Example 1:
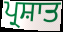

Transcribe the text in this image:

ਪ੍ਰਸ਼ਾਤ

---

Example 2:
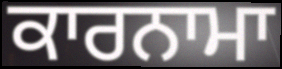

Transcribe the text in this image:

ਕਾਰਨਾਮਾ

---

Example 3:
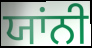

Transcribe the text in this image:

ਯਾਂਨੀ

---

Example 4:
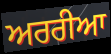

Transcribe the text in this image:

ਅਰਰੀਆ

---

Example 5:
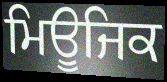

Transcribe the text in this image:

ਮਿਊਜਿਕ